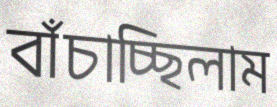
বাঁচাচ্ছিলাম